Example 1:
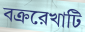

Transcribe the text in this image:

বক্ররেখাটি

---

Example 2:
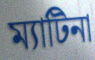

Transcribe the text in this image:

ম্যাটিনা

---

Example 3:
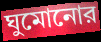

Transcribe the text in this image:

ঘুমোনোর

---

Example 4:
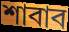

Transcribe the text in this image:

শাবাব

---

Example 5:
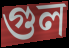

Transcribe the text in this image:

গুল